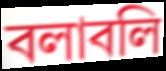
বলাবলি